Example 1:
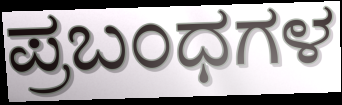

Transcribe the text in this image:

ಪ್ರಬಂಧಗಳ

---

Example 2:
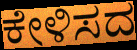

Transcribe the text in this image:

ಕೇಳಿಸದ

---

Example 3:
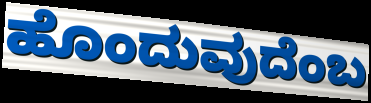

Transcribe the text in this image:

ಹೊಂದುವುದೆಂಬ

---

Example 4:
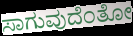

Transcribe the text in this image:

ಸಾಗುವುದೆಂತೋ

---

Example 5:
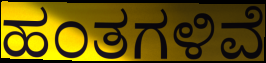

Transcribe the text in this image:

ಹಂತಗಳಿವೆ